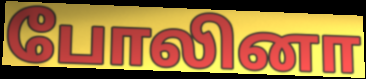
போலினா